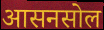
आसनसोल